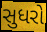
સુધરો